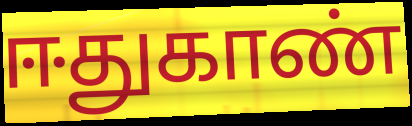
ஈதுகாண்